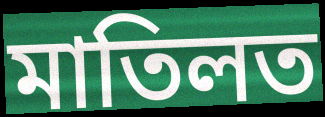
মাতিলত